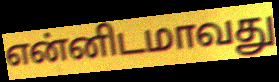
என்னிடமாவது